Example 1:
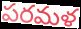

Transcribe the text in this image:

పరమళ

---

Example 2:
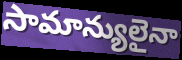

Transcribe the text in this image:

సామాన్యులైనా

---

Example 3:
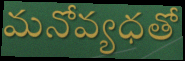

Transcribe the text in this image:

మనోవ్యధతో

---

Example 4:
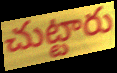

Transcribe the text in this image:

చుట్టారు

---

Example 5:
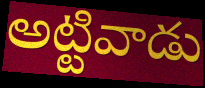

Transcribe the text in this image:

అట్టివాడు